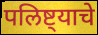
पलिष्ट्याचे